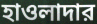
হাওলাদার